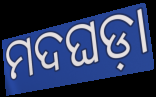
ମଦଘଡ଼ା